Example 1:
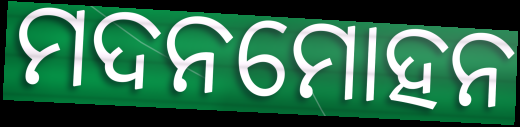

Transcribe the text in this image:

ମଦନମୋହନ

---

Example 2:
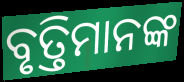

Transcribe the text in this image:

ବୃତ୍ତିମାନଙ୍କ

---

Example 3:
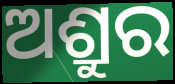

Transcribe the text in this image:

ଅଶ୍ରୁର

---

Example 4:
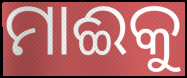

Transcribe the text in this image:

ମାଈକୁ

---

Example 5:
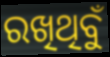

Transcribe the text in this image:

ରଖିଥିବୁଁ